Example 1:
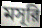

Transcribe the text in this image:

মসূরি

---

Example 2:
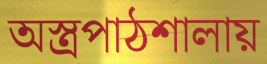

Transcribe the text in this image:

অস্ত্রপাঠশালায়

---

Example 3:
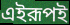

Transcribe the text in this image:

এইরূপই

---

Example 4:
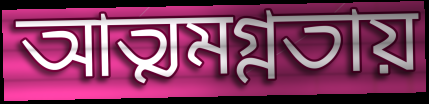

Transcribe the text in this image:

আত্মমগ্নতায়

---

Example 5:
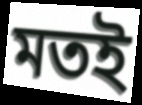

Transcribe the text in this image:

মতই